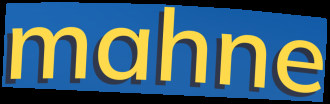
mahne